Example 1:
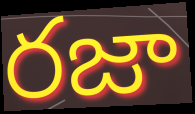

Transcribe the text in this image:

రజా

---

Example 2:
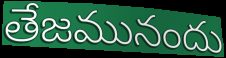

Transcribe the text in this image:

తేజమునందు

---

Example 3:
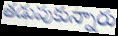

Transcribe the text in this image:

తడుపుకున్నారు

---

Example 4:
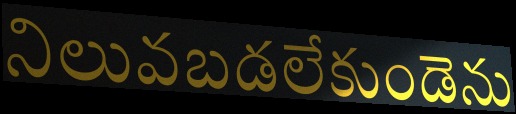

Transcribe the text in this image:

నిలువబడలేకుండెను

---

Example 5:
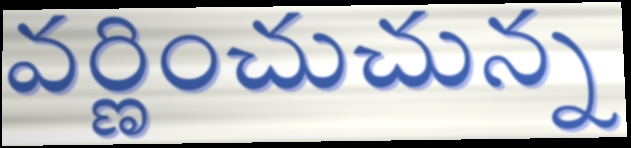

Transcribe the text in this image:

వర్ణించుచున్న